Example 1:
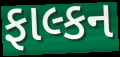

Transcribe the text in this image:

ફાલ્કન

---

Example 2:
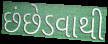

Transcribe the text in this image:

છંછેડવાથી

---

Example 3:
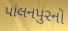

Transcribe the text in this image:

પાલનપુરનો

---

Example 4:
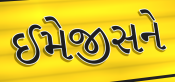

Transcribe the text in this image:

ઈમેજીસને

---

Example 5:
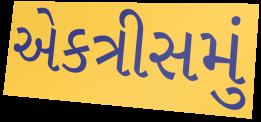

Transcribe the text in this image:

એકત્રીસમું